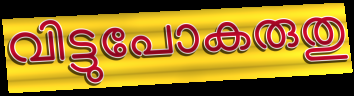
വിട്ടുപോകരുതു